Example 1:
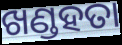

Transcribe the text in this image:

ଖଣ୍ଡହତା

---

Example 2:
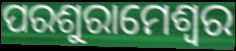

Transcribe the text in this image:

ପରଶୁରାମେଶ୍ୱର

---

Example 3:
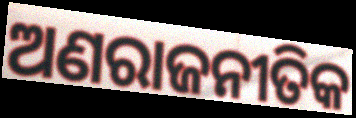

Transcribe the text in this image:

ଅଣରାଜନୀତିକ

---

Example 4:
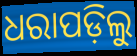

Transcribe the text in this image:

ଧରାପଡ଼ିଲୁ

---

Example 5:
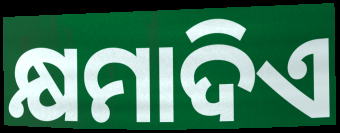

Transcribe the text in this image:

କ୍ଷମାଦିଏ